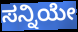
ಸನ್ನಿಯೇ